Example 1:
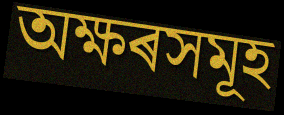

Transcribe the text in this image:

অক্ষৰসমূহ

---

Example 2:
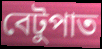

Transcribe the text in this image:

বেটুপাত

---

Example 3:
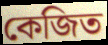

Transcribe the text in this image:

কেজিত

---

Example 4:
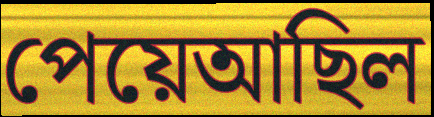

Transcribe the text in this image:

পেয়েআছিল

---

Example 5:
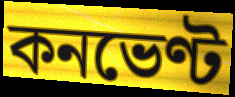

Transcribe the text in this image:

কনভেণ্ট